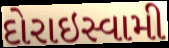
દોરાઇસ્વામી